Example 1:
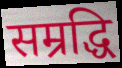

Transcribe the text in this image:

सम्रद्धि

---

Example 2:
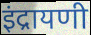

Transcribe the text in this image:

इंद्रायणी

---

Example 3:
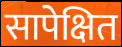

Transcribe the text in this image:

सापेक्षित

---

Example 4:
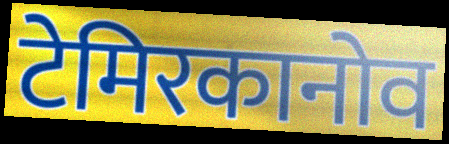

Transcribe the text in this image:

टेमिरकानोव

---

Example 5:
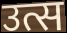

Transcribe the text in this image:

उत्स